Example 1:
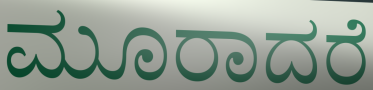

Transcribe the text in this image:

ಮೂರಾದರೆ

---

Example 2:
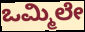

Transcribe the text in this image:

ಒಮ್ಮಿಲೇ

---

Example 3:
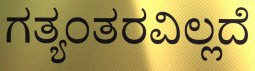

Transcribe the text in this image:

ಗತ್ಯಂತರವಿಲ್ಲದೆ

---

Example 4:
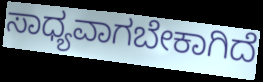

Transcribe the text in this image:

ಸಾಧ್ಯವಾಗಬೇಕಾಗಿದೆ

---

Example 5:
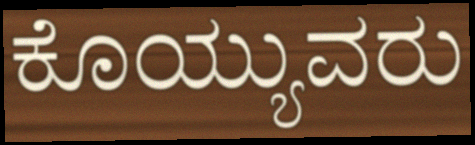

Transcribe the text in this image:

ಕೊಯ್ಯುವರು